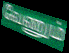
வேணும்